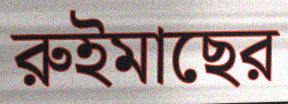
রুইমাছের